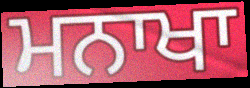
ਮਨਾਖਾ